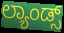
ಲ್ಯಾಂಡ್ಸ್